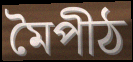
মৈপীঠ